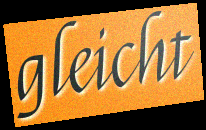
gleicht